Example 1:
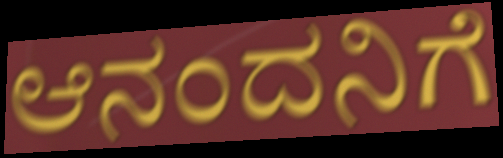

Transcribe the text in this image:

ಆನಂದನಿಗೆ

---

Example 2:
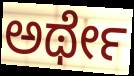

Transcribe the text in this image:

ಅರ್ಥೇ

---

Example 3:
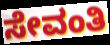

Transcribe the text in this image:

ಸೇವಂತಿ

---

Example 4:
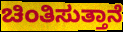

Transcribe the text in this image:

ಚಿಂತಿಸುತ್ತಾನೆ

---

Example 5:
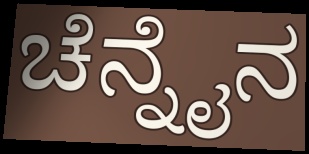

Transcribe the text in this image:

ಚೆನ್ನೈನ